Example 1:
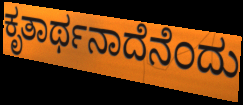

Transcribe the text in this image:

ಕೃತಾರ್ಥನಾದೆನೆಂದು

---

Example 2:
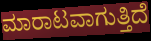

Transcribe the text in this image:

ಮಾರಾಟವಾಗುತ್ತಿದೆ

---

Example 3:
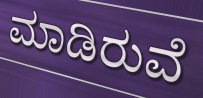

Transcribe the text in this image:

ಮಾಡಿರುವೆ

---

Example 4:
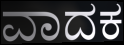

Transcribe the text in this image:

ವಾದಕ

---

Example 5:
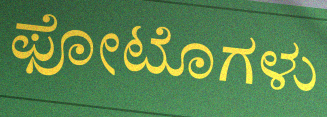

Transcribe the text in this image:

ಫೋಟೊಗಳು